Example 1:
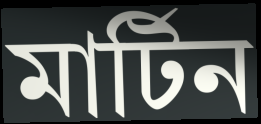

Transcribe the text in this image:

মাৰ্টিন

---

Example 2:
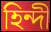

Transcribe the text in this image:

হিন্দী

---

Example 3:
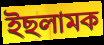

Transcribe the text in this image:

ইছলামক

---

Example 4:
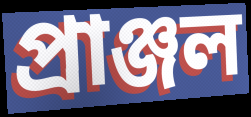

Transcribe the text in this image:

প্ৰাঞ্জল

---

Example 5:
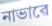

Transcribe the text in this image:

নাভাৱে